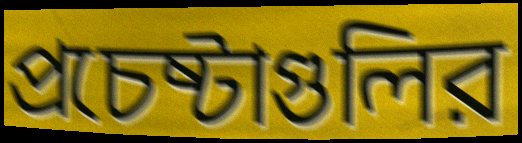
প্রচেষ্টাগুলির